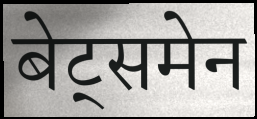
बेट्समेन